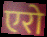
एरो